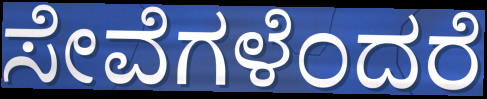
ಸೇವೆಗಳೆಂದರೆ